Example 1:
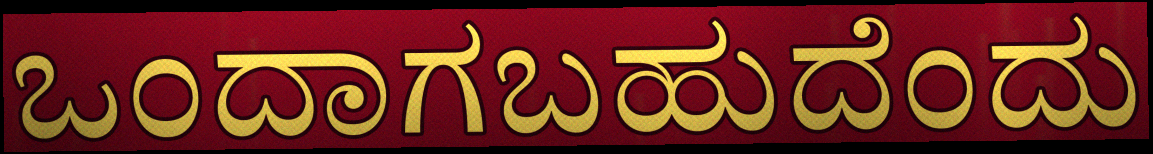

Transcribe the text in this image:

ಒಂದಾಗಬಹುದೆಂದು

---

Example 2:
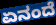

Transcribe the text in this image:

ಏನಂದೆ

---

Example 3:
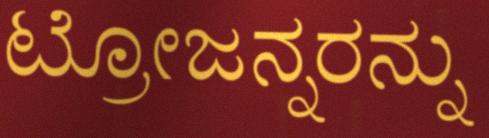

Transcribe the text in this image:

ಟ್ರೋಜನ್ನರನ್ನು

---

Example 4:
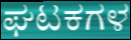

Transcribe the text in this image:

ಘಟಕಗಳ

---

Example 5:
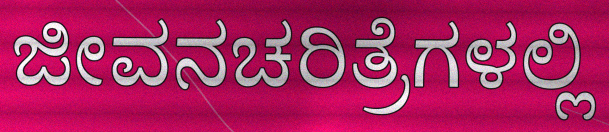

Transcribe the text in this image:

ಜೀವನಚರಿತ್ರೆಗಳಲ್ಲಿ